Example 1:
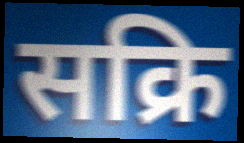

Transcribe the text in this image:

सक्रि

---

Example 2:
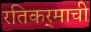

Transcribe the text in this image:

रतिकर्माची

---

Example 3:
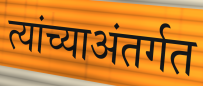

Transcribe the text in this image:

त्यांच्याअंतर्गत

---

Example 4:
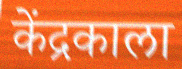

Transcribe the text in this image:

केंद्रकाला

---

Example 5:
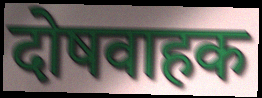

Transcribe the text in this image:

दोषवाहक